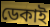
ডেকাই